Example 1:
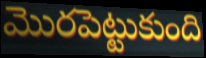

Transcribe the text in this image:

మొరపెట్టుకుంది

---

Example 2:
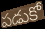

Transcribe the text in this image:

పడుకో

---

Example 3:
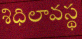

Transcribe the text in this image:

శిధిలావస్థ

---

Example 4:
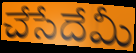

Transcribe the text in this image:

చేసేదేమీ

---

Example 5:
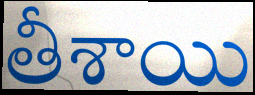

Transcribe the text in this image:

తీశాయి